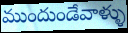
ముందుండేవాళ్ళు